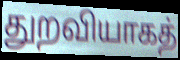
துறவியாகத்